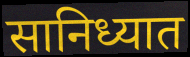
सानिध्यात